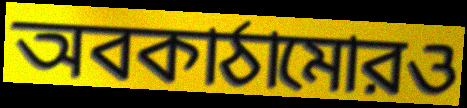
অবকাঠামোরও